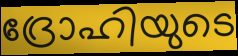
ദ്രോഹിയുടെ